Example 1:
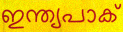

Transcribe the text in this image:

ഇന്ത്യപാക്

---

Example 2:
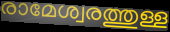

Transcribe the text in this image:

രാമേശ്വരത്തുള്ള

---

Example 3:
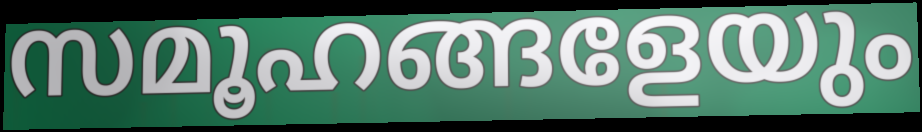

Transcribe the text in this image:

സമൂഹങ്ങളേയും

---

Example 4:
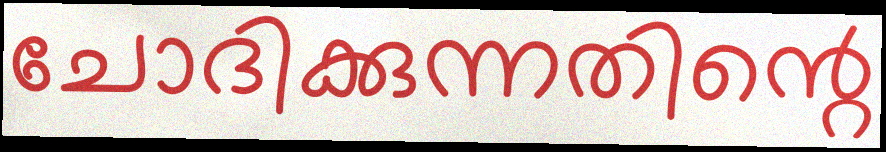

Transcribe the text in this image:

ചോദിക്കുന്നതിന്റെ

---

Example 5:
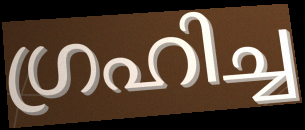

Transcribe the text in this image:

ഗ്രഹിച്ച